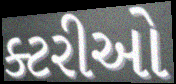
ક્ટરીઓ